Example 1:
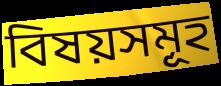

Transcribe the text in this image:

বিষয়সমূহ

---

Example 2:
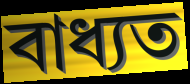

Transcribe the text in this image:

বাধ্যত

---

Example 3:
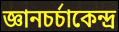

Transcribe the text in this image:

জ্ঞানচর্চাকেন্দ্র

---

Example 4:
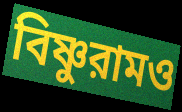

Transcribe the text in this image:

বিষ্ণুরামও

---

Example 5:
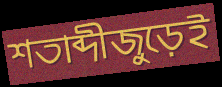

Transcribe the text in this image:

শতাব্দীজুড়েই